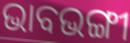
ଭାବଭଙ୍ଗୀ